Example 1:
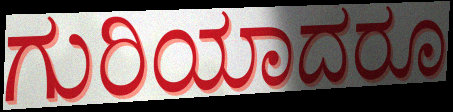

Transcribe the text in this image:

ಗುರಿಯಾದರೂ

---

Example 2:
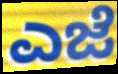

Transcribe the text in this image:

ಎಜೆ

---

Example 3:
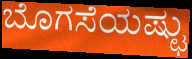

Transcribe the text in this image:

ಬೊಗಸೆಯಷ್ಟು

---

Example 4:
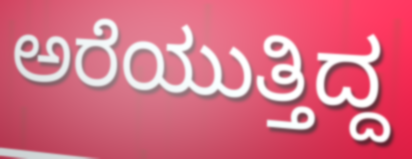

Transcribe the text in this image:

ಅರೆಯುತ್ತಿದ್ದ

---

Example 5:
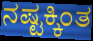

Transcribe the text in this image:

ನಷ್ಟಕ್ಕಿಂತ